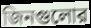
জিনগুলোর